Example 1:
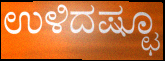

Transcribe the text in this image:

ಉಳಿದಷ್ಟೂ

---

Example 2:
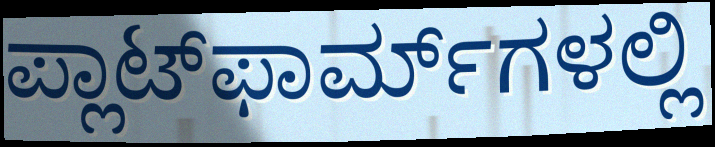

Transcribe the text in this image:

ಪ್ಲಾಟ್‌ಫಾರ್ಮ್‌ಗಳಲ್ಲಿ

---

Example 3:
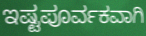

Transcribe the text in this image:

ಇಷ್ಟಪೂರ್ವಕವಾಗಿ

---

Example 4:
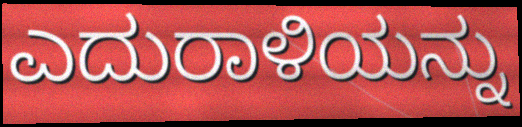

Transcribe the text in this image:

ಎದುರಾಳಿಯನ್ನು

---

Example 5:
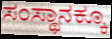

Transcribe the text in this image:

ಸಂಸ್ಥಾನಕ್ಕೂ